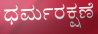
ಧರ್ಮರಕ್ಷಣೆ